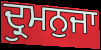
ਦ੍ਰੁਮਨੁਜਾ